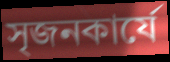
সৃজনকার্যে